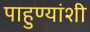
पाहुण्यांशी